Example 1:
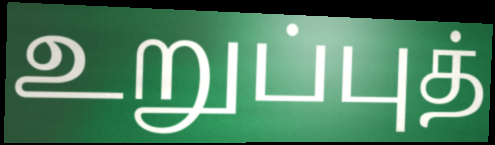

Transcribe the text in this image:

உறுப்புத்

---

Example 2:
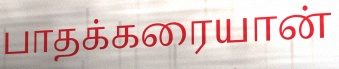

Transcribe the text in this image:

பாதக்கரையான்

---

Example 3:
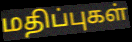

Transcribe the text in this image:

மதிப்புகள்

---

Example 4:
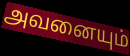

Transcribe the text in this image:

அவனையும்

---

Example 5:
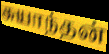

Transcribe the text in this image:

சுயாந்தன்